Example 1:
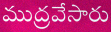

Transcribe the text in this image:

ముద్రవేసారు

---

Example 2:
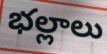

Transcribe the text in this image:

భల్లాలు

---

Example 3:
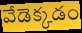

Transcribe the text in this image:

వేడెక్కడం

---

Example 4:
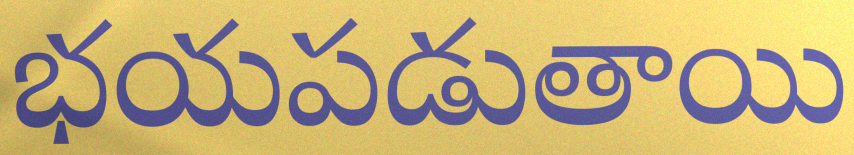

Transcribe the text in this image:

భయపడుతాయి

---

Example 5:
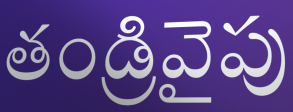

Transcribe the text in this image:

తండ్రివైపు